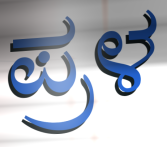
ಪ್ರಳ